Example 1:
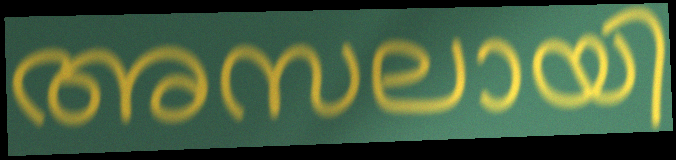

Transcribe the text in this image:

അസലായി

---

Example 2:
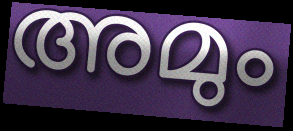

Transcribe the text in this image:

അമും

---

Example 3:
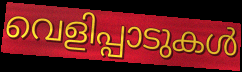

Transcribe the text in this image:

വെളിപ്പാടുകൾ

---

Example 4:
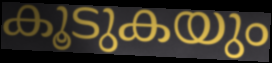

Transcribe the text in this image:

കൂടുകയും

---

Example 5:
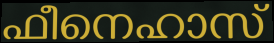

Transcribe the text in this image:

ഫീനെഹാസ്